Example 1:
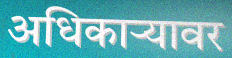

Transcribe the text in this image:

अधिकाऱ्यावर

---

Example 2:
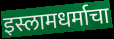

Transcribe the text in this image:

इस्लामधर्माचा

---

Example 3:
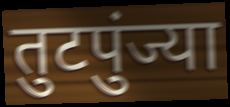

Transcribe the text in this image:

तुटपुंज्या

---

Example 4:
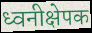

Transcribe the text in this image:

ध्वनीक्षेपक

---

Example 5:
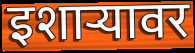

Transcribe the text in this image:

इशाऱ्यावर